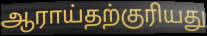
ஆராய்தற்குரியது